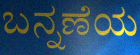
ಬನ್ನಣೆಯ